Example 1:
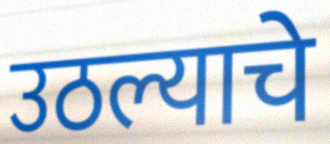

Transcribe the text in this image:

उठल्याचे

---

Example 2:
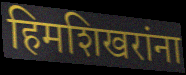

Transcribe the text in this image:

हिमशिखरांना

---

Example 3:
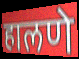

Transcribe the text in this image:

हालणे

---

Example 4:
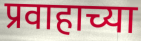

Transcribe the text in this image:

प्रवाहाच्या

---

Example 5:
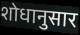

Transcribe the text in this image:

शोधानुसार